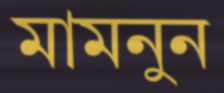
মামনুন